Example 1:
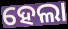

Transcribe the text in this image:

ହେଲା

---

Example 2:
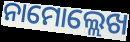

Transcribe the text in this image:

ନାମୋଲ୍ଲେଖ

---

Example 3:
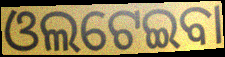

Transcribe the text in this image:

ଓଲଟେଇବା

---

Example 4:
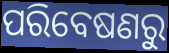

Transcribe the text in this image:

ପରିବେଷଣରୁ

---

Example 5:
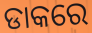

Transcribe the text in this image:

ଡାକରେ